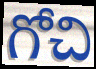
గోచి